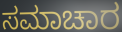
ಸಮಾಚಾರ